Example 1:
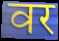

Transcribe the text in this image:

वर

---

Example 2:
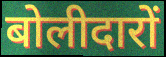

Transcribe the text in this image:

बोलीदारों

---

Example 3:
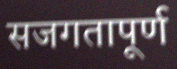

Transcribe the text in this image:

सजगतापूर्ण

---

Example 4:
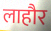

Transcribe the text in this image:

लाहौर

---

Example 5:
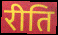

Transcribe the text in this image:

रीति